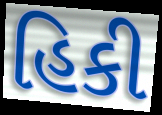
હિકી